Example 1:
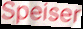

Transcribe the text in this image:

Speiser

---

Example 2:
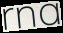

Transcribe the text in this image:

rna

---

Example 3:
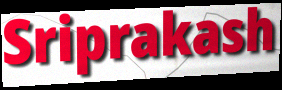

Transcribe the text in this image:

Sriprakash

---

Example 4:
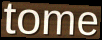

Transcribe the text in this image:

tome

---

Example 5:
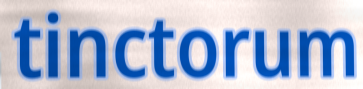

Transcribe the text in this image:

tinctorum